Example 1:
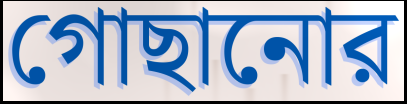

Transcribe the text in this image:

গোছানোর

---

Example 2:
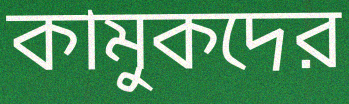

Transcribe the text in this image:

কামুকদের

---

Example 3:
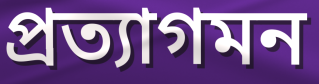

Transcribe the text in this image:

প্রত্যাগমন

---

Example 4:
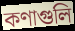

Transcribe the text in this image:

কণাগুলি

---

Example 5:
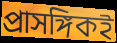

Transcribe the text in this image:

প্রাসঙ্গিকই